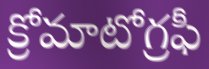
క్రోమాటోగ్రఫీ